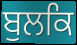
ਬੁਲਕਿ